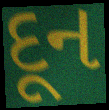
દૂન